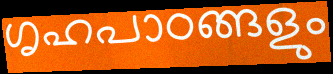
ഗൃഹപാഠങ്ങളും